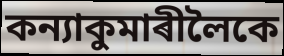
কন্যাকুমাৰীলৈকে